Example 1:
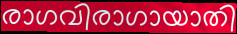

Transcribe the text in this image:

രാഗവിരാഗായാതി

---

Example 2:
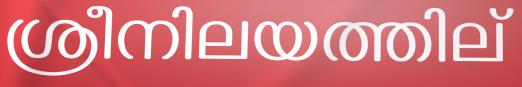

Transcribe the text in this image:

ശ്രീനിലയത്തില്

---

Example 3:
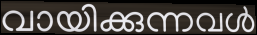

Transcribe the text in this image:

വായിക്കുന്നവൾ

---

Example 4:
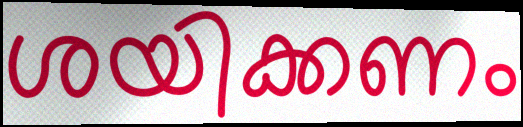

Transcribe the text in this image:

ശയിക്കണം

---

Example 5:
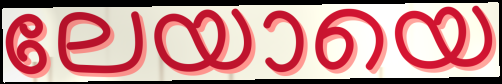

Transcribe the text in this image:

ലേയായെ